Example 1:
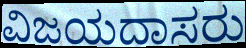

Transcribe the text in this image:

ವಿಜಯದಾಸರು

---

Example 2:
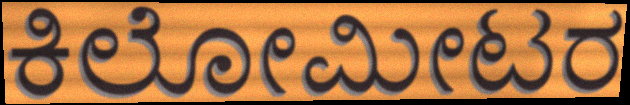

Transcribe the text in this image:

ಕಿಲೋಮೀಟರ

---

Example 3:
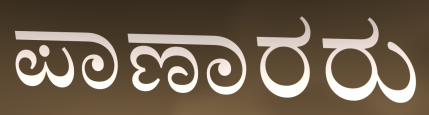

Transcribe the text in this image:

ಪಾಣಾರರು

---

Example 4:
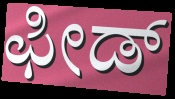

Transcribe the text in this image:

ಫೀಡ್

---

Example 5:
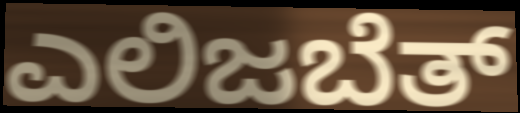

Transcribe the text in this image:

ಎಲಿಜಬೆತ್